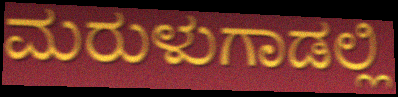
ಮರುಳುಗಾಡಲ್ಲಿ